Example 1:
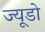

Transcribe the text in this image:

ज्यूडो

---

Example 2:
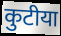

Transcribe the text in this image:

कुटीया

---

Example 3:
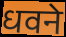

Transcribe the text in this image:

धवने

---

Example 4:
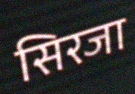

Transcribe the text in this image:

सिरजा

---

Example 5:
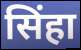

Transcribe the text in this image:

सिंहा